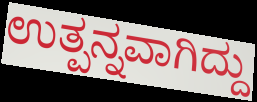
ಉತ್ಪನ್ನವಾಗಿದ್ದು